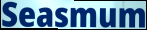
Seasmum